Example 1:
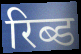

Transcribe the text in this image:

रिब्ड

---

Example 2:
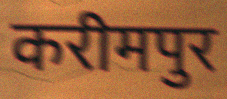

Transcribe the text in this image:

करीमपुर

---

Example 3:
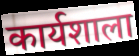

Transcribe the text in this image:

कार्यशाला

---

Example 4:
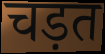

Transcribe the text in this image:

चड़त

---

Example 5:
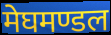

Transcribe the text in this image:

मेघमण्डल